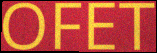
OFET